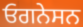
ਓਗਨੇਸਨ